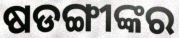
ଷଡଙ୍ଗୀଙ୍କର